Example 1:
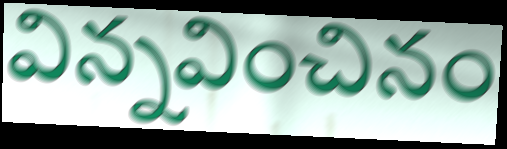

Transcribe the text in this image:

విన్నవించినం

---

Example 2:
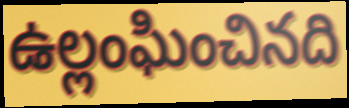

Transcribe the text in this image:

ఉల్లంఘించినది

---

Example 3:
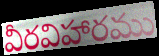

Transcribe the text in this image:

వీరవిహారము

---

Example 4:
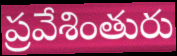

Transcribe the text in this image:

ప్రవేశింతురు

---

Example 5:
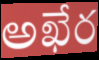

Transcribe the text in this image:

అఖేర